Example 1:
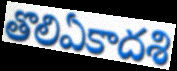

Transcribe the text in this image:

తొలిఏకాదశి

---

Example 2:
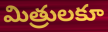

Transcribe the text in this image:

మిత్రులకూ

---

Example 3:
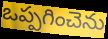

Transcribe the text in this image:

ఒప్పగించెను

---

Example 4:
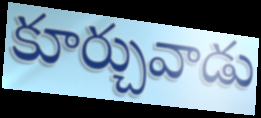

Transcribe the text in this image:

కూర్చువాడు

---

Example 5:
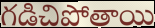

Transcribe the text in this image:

గడిచిపోతాయి